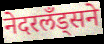
नेदरलँड्सने